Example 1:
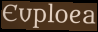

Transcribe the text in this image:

Euploea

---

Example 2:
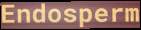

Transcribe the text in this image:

Endosperm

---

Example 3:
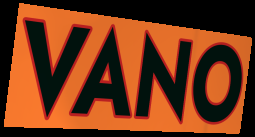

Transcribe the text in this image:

VANO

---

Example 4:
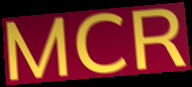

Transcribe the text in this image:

MCR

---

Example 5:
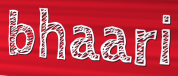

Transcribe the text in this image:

bhaari